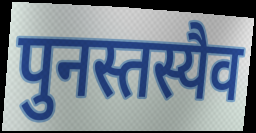
पुनस्तस्यैव